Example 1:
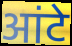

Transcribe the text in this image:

आंटे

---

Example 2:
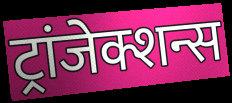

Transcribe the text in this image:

ट्रांजेक्शन्स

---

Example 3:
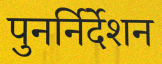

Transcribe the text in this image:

पुनर्निर्देशन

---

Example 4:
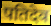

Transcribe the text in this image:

पतिदेव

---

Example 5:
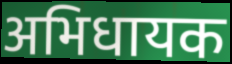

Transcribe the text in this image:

अभिधायक